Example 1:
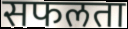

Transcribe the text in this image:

सफलता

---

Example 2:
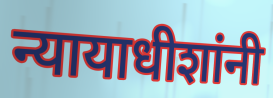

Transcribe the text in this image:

न्यायाधीशांनी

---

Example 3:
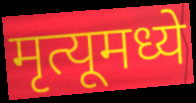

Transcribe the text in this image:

मृत्यूमध्ये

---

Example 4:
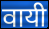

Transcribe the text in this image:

वायी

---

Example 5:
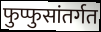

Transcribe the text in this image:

फुप्फुसांतर्गत